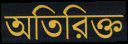
অতিরিক্ত